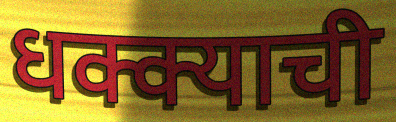
धक्क्याची